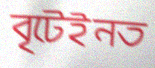
বৃটেইনত